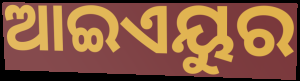
ଆଇଏୟୁର